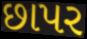
છાપર